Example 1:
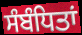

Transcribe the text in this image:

ਸੰਬੰਧਿਤਾਂ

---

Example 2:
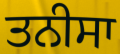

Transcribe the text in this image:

ਤਨੀਸਾ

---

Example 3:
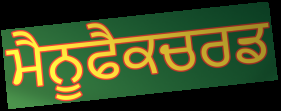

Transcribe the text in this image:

ਮੈਨੂਫੈਕਚਰਡ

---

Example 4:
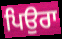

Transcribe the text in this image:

ਪਿਉਰਾ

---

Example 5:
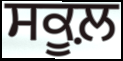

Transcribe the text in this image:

ਸਕੂਲ਼